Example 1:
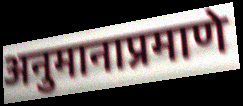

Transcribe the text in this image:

अनुमानाप्रमाणे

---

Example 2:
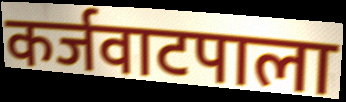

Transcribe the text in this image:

कर्जवाटपाला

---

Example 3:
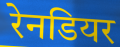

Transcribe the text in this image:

रेनडियर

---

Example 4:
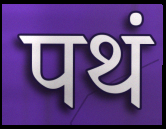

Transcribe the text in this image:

पथं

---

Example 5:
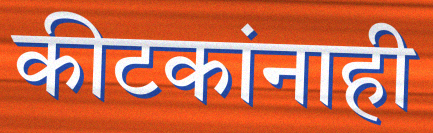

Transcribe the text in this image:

कीटकांनाही